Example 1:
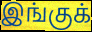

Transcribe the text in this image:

இங்குக்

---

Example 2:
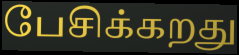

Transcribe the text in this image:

பேசிக்கறது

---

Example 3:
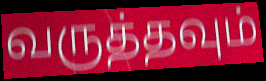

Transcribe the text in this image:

வருத்தவும்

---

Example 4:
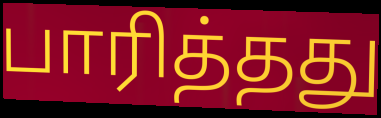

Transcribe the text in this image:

பாரித்தது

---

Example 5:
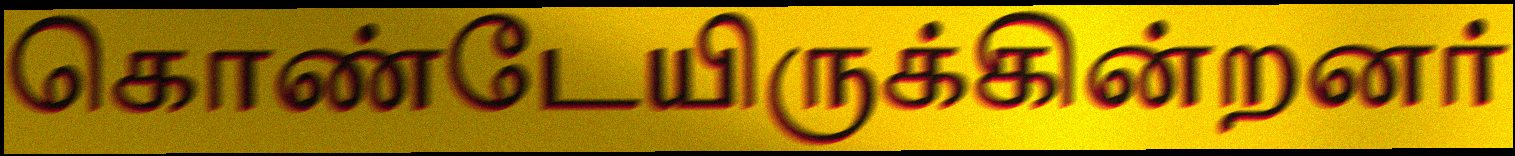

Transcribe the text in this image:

கொண்டேயிருக்கின்றனர்